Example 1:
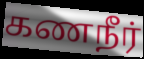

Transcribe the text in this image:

கணநீர்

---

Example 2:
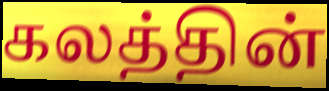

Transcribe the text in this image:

கலத்தின்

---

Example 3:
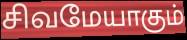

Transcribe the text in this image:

சிவமேயாகும்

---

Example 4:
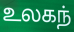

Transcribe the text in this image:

உலகந்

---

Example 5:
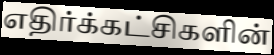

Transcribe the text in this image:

எதிர்க்கட்சிகளின்